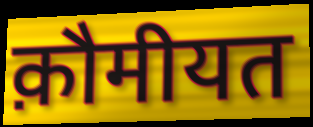
क़ौमीयत